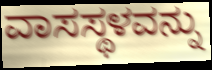
ವಾಸಸ್ಥಳವನ್ನು